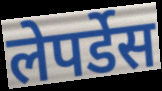
लेपर्डेस